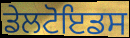
ਡੇਲਟੋਇਡਸ